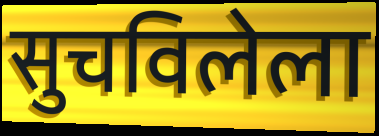
सुचविलेला